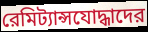
রেমিট্যান্সযোদ্ধাদের